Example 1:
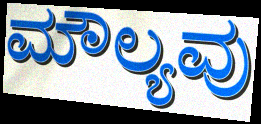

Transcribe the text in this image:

ಮೌಲ್ಯವು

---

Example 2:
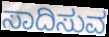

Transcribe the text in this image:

ಸಾದಿಸುವ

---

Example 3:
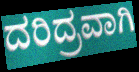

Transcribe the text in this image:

ದರಿದ್ರವಾಗಿ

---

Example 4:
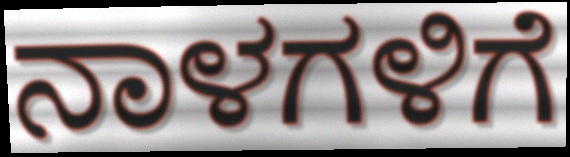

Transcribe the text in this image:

ನಾಳಗಳಿಗೆ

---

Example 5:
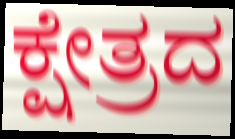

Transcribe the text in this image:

ಕ್ಷೇತ್ರದ